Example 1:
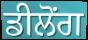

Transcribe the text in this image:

ਡੀਲੋਂਗ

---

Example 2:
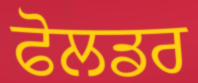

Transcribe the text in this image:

ਫੋਲਡਰ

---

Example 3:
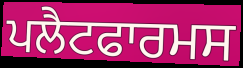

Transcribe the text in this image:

ਪਲੈਟਫਾਰਮਸ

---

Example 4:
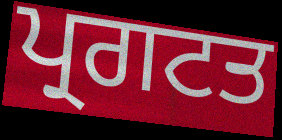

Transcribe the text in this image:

ਪ੍ਰਗਟਤ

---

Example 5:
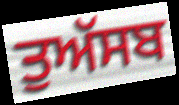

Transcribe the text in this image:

ਤੁਅੱਸਬ